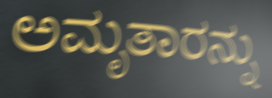
ಅಮೃತಾರನ್ನು